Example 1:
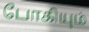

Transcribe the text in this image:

போகியும்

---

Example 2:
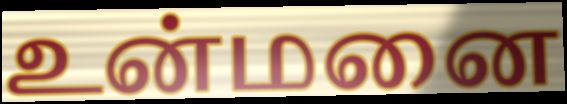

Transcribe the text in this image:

உன்மனை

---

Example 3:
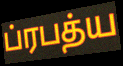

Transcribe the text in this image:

ப்ரபத்ய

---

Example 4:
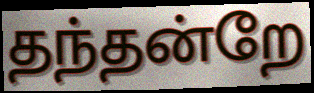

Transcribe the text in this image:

தந்தன்றே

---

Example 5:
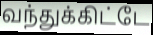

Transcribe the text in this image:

வந்துக்கிட்டே